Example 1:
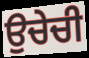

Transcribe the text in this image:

ਉਚੇਚੀ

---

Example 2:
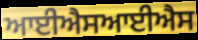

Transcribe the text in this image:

ਆਈਐਸਆਈਐਸ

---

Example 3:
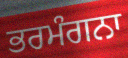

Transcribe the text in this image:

ਭਰਮੰਗਨਾ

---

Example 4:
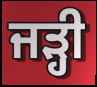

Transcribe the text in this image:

ਜੜ੍ਹੀ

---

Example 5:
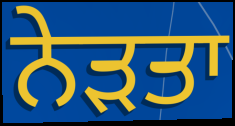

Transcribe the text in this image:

ਨੇੜਤਾ